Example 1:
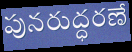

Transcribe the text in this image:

పునరుద్ధరణే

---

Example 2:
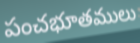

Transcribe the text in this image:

పంచభూతములు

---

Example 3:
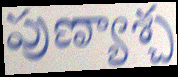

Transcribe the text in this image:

పుణ్యాశ్చ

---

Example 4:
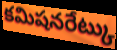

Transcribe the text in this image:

కమిషనరేట్కు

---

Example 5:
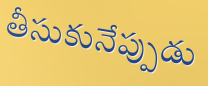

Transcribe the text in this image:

తీసుకునేప్పుడు